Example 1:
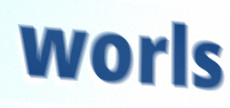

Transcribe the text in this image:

worls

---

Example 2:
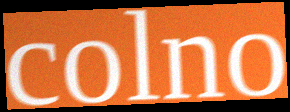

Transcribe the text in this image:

colno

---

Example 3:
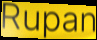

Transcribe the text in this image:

Rupan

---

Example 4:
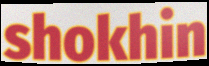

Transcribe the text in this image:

shokhin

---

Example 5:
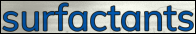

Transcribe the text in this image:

surfactants